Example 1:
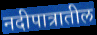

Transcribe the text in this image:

नदीपात्रातील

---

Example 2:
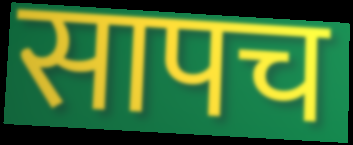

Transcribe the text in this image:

सापच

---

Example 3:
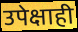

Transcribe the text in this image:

उपेक्षाही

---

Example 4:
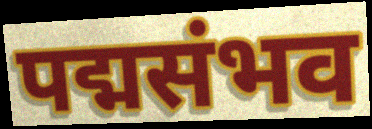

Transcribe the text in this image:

पद्मसंभव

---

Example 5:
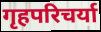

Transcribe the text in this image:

गृहपरिचर्या